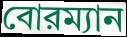
বোরম্যান